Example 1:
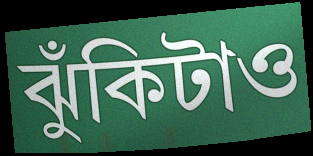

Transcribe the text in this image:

ঝুঁকিটাও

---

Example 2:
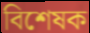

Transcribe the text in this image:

বিশেষক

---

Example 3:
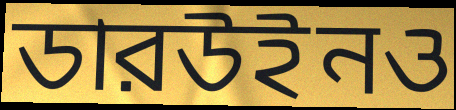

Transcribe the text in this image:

ডারউইনও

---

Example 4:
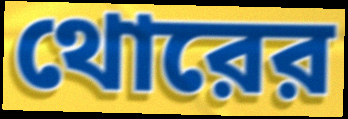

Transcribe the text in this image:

থোরের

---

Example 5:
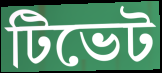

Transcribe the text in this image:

টিভেট